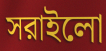
সরাইলো